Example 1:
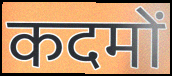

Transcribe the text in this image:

कदमों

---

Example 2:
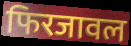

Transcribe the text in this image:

फिरजावल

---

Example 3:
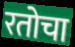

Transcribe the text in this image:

रतोचा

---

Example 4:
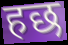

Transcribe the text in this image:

हछ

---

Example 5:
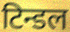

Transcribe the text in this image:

टिन्डल